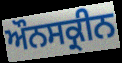
ਔਨਸਕ੍ਰੀਨ